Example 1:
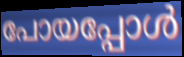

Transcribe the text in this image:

പോയപ്പോൾ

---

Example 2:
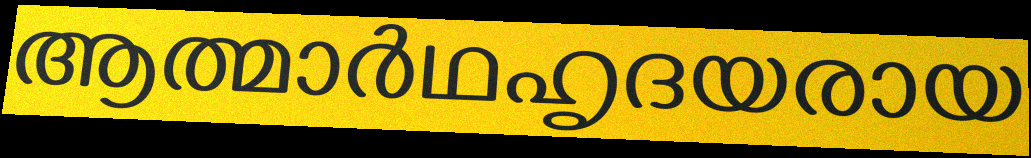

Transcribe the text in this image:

ആത്മാർഥഹൃദയരായ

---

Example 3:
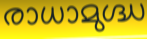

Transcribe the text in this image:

രാധാമുഗ്ദ്ധ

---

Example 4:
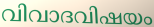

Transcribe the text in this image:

വിവാദവിഷയം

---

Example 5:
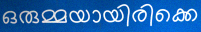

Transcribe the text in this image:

ഒരുമ്മയായിരിക്കെ